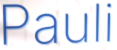
Pauli